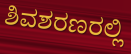
ಶಿವಶರಣರಲ್ಲಿ